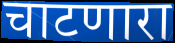
चाटणारा